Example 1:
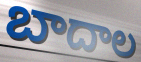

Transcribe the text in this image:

బాదాల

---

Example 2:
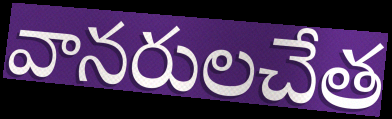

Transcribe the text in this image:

వానరులచేత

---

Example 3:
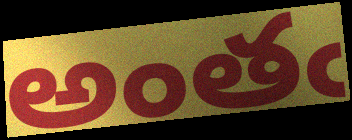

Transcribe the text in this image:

అంతఁ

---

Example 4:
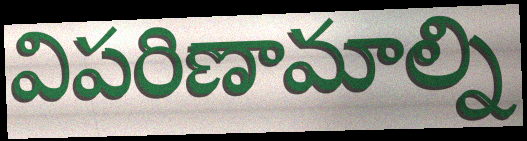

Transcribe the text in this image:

విపరిణామాల్ని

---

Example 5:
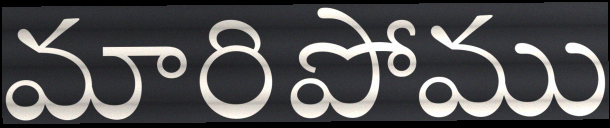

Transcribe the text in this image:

మారిపోము